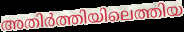
അതിർത്തിയിലെത്തിയ